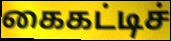
கைகட்டிச்